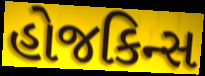
હોજકિન્સ